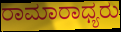
ರಾಮಾರಾಧ್ಯರು